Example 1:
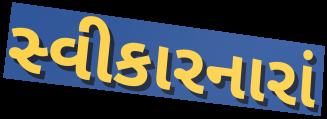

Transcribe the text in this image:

સ્વીકારનારાં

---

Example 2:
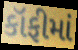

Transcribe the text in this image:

કૉફીમાં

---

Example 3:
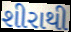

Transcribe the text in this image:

શીરાથી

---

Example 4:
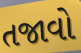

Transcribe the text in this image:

તજાવો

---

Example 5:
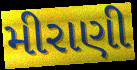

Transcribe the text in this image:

મીરાણી